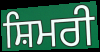
ਸ਼ਿਮਰੀ